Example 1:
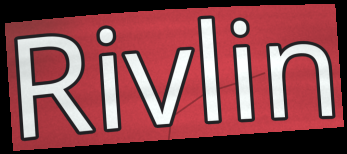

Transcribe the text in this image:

Rivlin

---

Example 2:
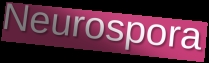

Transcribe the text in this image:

Neurospora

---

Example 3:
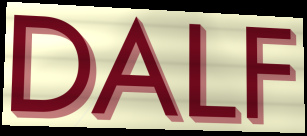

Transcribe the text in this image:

DALF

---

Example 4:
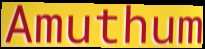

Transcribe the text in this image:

Amuthum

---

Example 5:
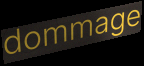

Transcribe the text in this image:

dommage